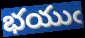
భయుఁ